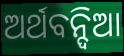
ଅର୍ଥବନ୍ଦିଆ